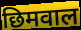
छिमवाल